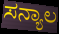
ಸನ್ಯಾಲ